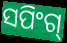
ସପିଂଗ୍